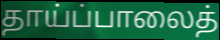
தாய்ப்பாலைத்